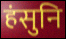
हंसुनि